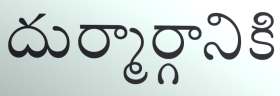
దుర్మార్గానికి